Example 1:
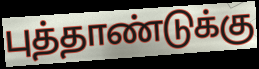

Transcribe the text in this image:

புத்தாண்டுக்கு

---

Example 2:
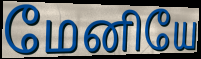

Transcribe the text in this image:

மேனியே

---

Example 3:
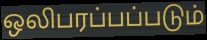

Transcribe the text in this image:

ஒலிபரப்பப்படும்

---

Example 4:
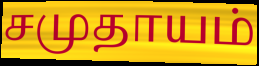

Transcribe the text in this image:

சமுதாயம்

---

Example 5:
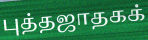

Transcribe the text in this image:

புத்தஜாதகக்